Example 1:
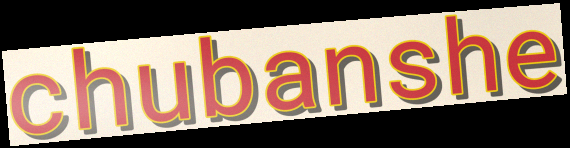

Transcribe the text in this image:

chubanshe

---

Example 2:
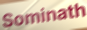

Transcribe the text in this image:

Sominath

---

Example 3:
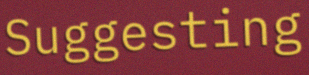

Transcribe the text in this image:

Suggesting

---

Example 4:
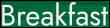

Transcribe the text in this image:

Breakfast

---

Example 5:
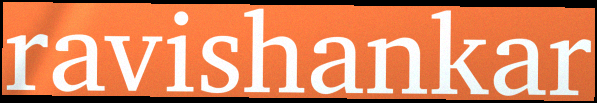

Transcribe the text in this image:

ravishankar